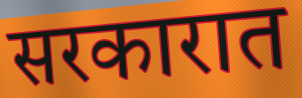
सरकारात